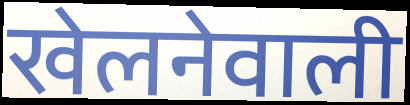
खेलनेवाली